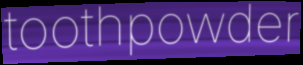
toothpowder